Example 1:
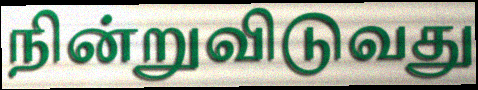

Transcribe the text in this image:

நின்றுவிடுவது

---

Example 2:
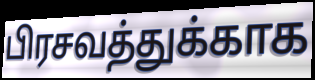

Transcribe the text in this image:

பிரசவத்துக்காக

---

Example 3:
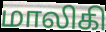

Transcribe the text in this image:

மாலிகி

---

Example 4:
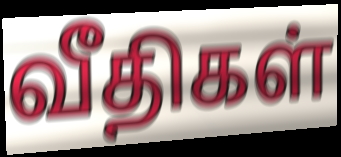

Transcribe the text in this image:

வீதிகள்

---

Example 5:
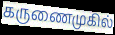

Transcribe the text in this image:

கருணைமுகில்